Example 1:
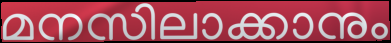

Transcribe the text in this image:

മനസിലാക്കാനും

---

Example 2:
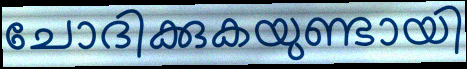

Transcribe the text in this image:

ചോദിക്കുകയുണ്ടായി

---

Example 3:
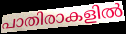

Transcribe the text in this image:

പാതിരാകളിൽ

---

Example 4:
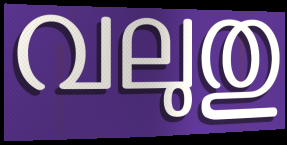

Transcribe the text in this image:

വലുതു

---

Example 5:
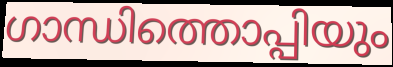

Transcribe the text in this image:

ഗാന്ധിത്തൊപ്പിയും